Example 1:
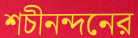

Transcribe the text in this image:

শচীনন্দনের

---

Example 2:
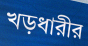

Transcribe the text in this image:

খড়ধারীর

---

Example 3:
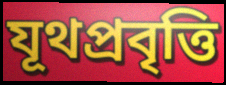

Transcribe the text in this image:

যূথপ্রবৃত্তি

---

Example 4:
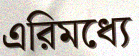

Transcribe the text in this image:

এরিমধ্যে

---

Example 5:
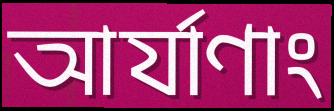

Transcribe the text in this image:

আর্যাণাং